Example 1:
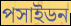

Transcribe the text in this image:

পসাইডন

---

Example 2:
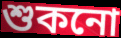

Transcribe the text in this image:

শুকনো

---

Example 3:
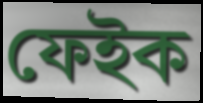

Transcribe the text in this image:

ফেইক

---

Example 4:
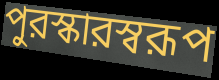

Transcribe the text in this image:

পুরস্কারস্বরূপ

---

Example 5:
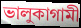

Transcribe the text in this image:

ভালুকাগামী